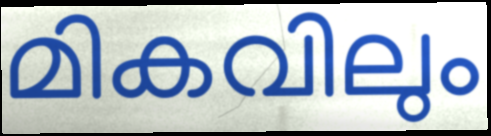
മികവിലും